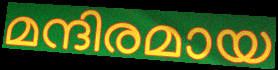
മന്ദിരമായ